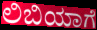
ಲಿಬಿಯಾಗೆ